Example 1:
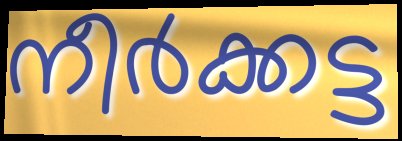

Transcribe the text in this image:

നീർക്കട്ട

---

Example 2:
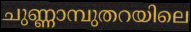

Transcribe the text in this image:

ചുണ്ണാമ്പുതറയിലെ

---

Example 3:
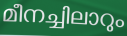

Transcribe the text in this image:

മീനച്ചിലാറും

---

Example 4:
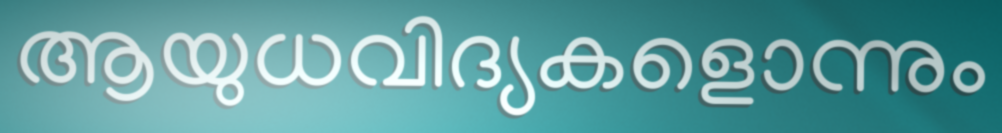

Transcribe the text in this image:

ആയുധവിദ്യകളൊന്നും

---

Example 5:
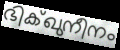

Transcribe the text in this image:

ഭിക്ഖുനീനം